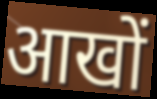
आखों